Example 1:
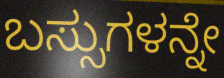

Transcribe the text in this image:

ಬಸ್ಸುಗಳನ್ನೇ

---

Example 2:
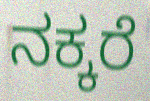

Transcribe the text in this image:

ನಕ್ಕರೆ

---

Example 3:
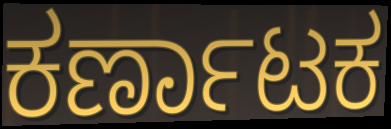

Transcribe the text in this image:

ಕರ್ಣಾಟಕ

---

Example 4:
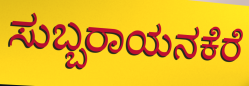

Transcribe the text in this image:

ಸುಬ್ಬರಾಯನಕೆರೆ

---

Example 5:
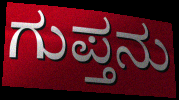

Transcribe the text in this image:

ಗುಪ್ತನು